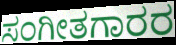
ಸಂಗೀತಗಾರರ